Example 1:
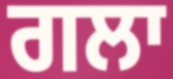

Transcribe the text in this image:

ਗਲਾ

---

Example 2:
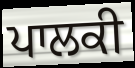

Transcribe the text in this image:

ਪਾਲਕੀ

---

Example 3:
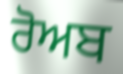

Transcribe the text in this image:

ਰੋਅਬ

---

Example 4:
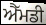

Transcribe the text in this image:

ਐੱਮਡੀ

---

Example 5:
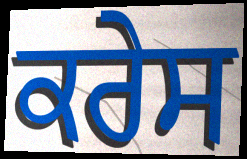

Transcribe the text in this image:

ਕਰੇਸ